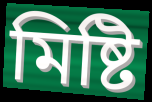
মিষ্টি